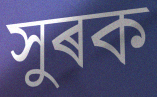
সুৰক